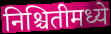
निश्चितीमध्ये